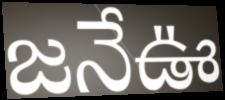
జనేఊ